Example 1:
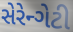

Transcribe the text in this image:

સેરેન્ગેટી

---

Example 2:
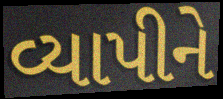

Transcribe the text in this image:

વ્યાપીને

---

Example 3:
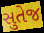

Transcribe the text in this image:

સુતેજ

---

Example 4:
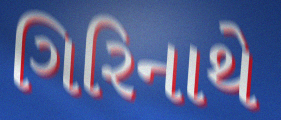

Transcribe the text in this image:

ગિરિનાથે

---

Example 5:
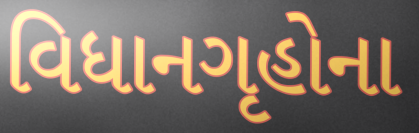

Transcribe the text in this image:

વિધાનગૃહોના